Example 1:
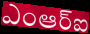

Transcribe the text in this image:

ఎంఆర్ఐ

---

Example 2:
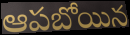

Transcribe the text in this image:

ఆపబోయిన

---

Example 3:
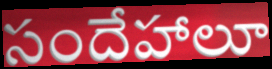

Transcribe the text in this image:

సందేహాలూ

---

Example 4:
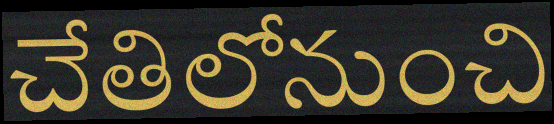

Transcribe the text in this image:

చేతిలోనుంచి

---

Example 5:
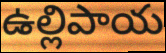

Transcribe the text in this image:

ఉల్లిపాయ